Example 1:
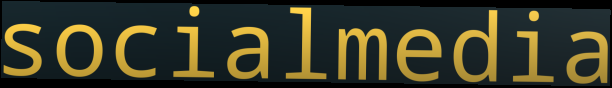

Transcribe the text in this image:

socialmedia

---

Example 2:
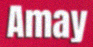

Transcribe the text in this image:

Amay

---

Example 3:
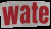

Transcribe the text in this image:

wate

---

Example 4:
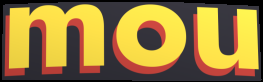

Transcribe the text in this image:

mou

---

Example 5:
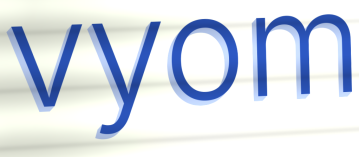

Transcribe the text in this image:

vyom